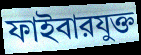
ফাইবারযুক্ত